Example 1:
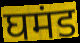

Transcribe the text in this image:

घमंड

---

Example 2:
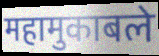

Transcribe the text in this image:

महामुकाबले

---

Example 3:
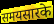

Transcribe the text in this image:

समयसारके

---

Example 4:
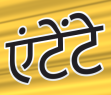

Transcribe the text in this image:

एंटेंटे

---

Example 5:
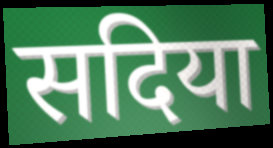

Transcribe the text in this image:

सदिया